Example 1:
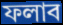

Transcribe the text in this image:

ফলাব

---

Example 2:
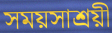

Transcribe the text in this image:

সময়সাশ্রয়ী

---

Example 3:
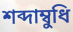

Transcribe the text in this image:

শব্দাম্বুধি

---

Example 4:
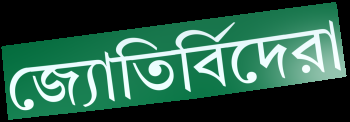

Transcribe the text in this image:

জ্যোতির্বিদেরা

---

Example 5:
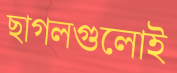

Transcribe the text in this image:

ছাগলগুলোই